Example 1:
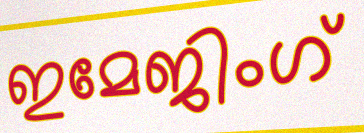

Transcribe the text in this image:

ഇമേജിംഗ്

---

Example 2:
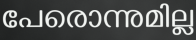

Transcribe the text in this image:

പേരൊന്നുമില്ല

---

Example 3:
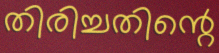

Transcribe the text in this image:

തിരിച്ചതിന്റെ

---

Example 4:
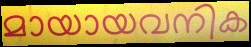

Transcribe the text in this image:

മായായവനിക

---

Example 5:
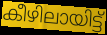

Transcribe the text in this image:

കീഴിലായിട്ട്